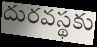
దురవస్థకు